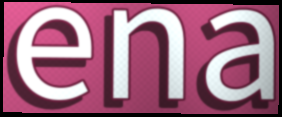
ena